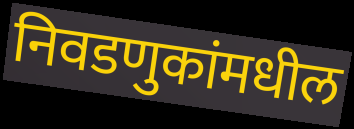
निवडणुकांमधील